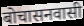
बोचासनवासी